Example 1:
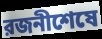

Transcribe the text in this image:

রজনীশেষে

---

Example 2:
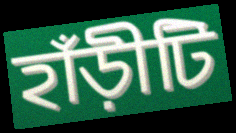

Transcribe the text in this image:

হাঁড়ীটি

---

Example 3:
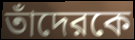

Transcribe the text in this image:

তাঁদেরকে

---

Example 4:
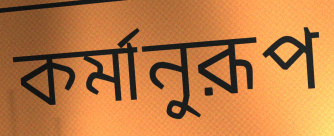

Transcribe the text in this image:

কর্মানুরূপ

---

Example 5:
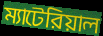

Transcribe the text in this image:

ম্যাটেরিয়াল